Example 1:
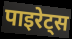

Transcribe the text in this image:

पाइरेट्स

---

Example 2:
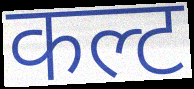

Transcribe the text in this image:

कल्ट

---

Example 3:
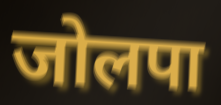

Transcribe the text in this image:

जोलपा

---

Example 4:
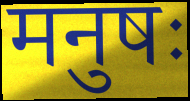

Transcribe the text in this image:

मनुषः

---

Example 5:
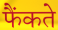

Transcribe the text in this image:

फैंकते